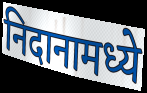
निदानामध्ये